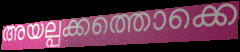
അയല്പക്കത്തൊക്കെ